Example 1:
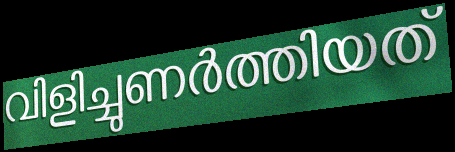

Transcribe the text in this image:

വിളിച്ചുണർത്തിയത്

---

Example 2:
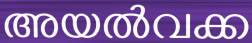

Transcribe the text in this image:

അയൽവക്ക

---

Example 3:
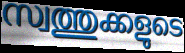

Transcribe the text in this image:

സ്വത്തുക്കളുടെ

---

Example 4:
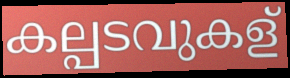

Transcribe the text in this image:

കല്പടവുകള്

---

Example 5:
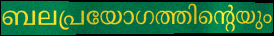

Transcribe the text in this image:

ബലപ്രയോഗത്തിന്റെയും